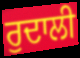
ਰੁਦਾਲੀ